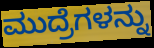
ಮುದ್ರೆಗಳನ್ನು